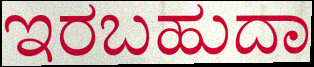
ಇರಬಹುದಾ